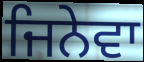
ਜਿਨੇਵਾ